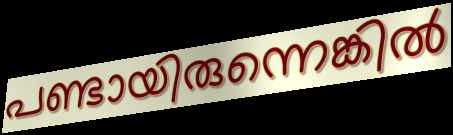
പണ്ടായിരുന്നെങ്കിൽ